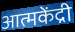
आत्मकेंद्री